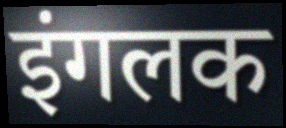
इंगलक